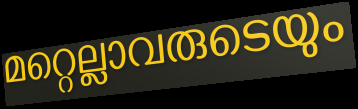
മറ്റെല്ലാവരുടെയും